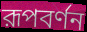
রূপবর্ণন